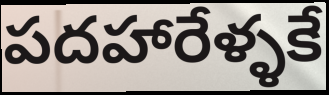
పదహారేళ్ళకే